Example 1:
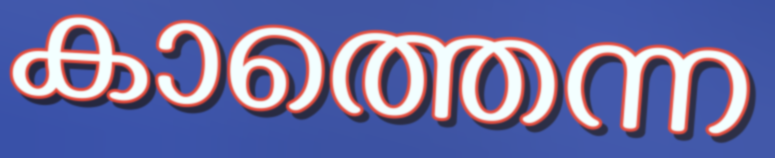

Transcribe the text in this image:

കാത്തെന്ന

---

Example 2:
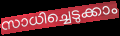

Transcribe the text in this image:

സാധിച്ചെടുക്കാം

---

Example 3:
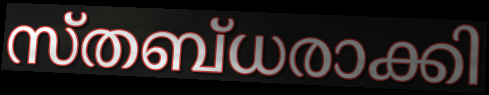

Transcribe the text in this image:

സ്തബ്ധരാക്കി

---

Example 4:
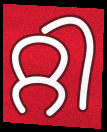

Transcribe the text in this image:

റ്റി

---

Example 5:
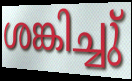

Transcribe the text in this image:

ശങ്കിച്ചു്